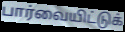
பார்வையிட்டுக்